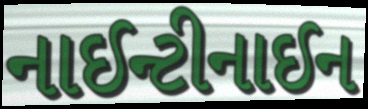
નાઈન્ટીનાઈન